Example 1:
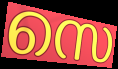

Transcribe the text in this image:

സെ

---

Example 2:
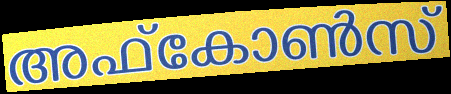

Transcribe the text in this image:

അഫ്കോൺസ്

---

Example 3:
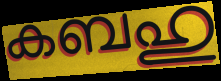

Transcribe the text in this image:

കബഹു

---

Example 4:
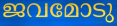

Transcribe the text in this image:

ജവമോടു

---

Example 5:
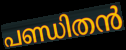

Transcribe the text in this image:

പണ്ഡിതൻ